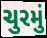
ચુરમું